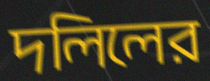
দলিলের